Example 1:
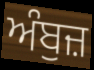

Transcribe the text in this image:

ਅੰਬੁਜ਼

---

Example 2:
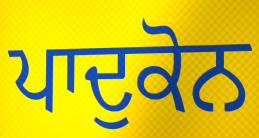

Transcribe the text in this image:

ਪਾਦੁਕੋਨ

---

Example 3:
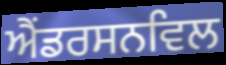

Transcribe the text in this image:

ਐਂਡਰਸਨਵਿਲ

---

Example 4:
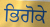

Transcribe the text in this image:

ਭਿਗੋਕੇ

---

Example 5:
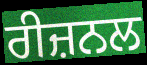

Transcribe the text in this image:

ਰੀਜ਼ਨਲ